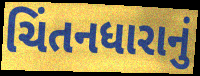
ચિંતનધારાનું